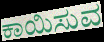
ಕಾಯಿಸುವ